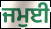
ਜਮੁਈ